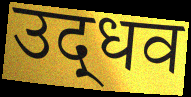
उद्धव